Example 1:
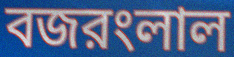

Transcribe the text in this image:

বজরংলাল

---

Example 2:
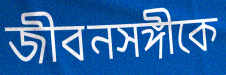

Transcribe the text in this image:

জীবনসঙ্গীকে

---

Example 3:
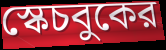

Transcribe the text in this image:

স্কেচবুকের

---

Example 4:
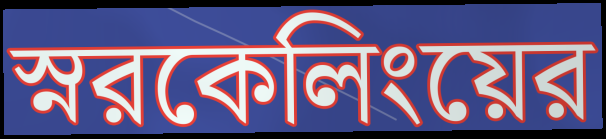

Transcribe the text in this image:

স্নরকেলিংয়ের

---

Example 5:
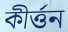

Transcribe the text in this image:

কীর্ত্তন